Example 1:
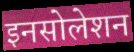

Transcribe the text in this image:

इनसोलेशन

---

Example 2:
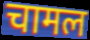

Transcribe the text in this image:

चामल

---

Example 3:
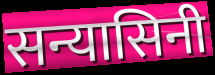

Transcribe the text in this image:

सन्यासिनी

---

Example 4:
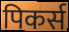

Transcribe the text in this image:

पिकर्स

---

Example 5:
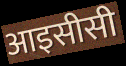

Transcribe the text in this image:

आइसीसी